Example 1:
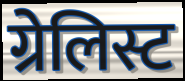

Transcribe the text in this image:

ग्रेलिस्ट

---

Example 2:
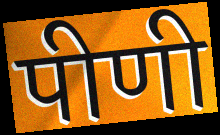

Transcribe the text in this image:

पीणी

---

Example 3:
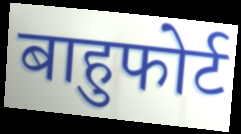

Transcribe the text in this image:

बाहुफोर्ट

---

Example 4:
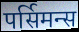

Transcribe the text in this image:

पर्सिमन्स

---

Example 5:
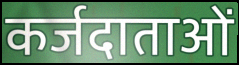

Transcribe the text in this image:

कर्जदाताओं